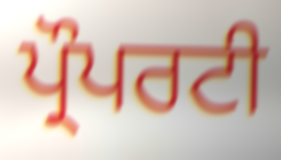
ਪ੍ਰੌਪਰਟੀ